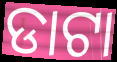
ଡାଟା